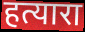
हत्यारा